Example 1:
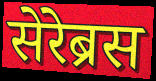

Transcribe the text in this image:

सेरेब्रस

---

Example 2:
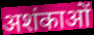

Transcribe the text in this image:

अशंकाओं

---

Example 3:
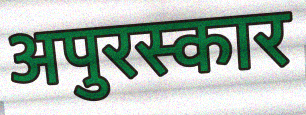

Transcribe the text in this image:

अपुरस्कार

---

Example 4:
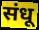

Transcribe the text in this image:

संधू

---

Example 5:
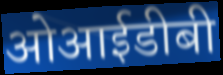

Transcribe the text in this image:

ओआईडीबी